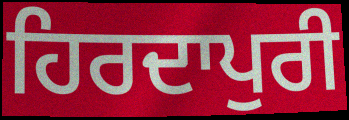
ਹਿਰਦਾਪੁਰੀ